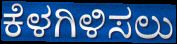
ಕೆಳಗಿಳಿಸಲು